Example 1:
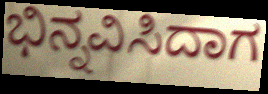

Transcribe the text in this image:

ಭಿನ್ನವಿಸಿದಾಗ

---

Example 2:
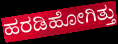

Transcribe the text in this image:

ಹರಡಿಹೋಗಿತ್ತು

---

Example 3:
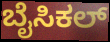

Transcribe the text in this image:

ಬೈಸಿಕಲ್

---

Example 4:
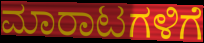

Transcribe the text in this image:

ಮಾರಾಟಗಳಿಗೆ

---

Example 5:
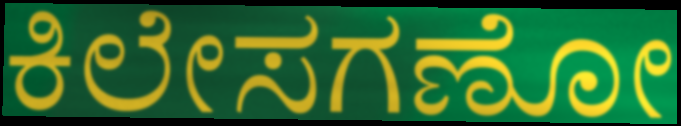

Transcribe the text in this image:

ಕಿಲೇಸಗಣೋ